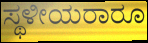
ಸ್ಥಳೀಯರಾರೂ